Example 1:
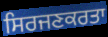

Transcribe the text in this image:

ਸਿਰਜਣਕਰਤਾ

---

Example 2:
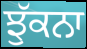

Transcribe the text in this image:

ਝੁੱਕਨਾ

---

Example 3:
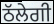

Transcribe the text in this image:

ਠੱਲੇਗੀ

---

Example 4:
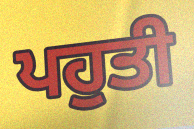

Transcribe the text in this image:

ਪਹੁਤੀ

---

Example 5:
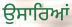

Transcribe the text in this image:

ਉਸਾਰਿਆਂ